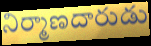
నిర్మాణదారుడు